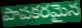
పాపకరమైన